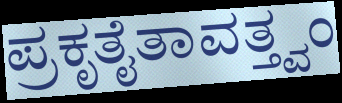
ಪ್ರಕೃತೈತಾವತ್ತ್ವಂ